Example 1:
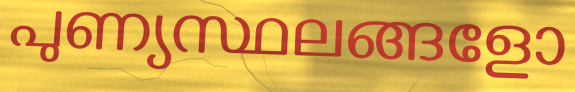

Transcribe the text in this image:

പുണ്യസ്ഥലങ്ങളോ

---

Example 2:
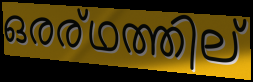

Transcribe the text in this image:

ഒരര്ഥത്തില്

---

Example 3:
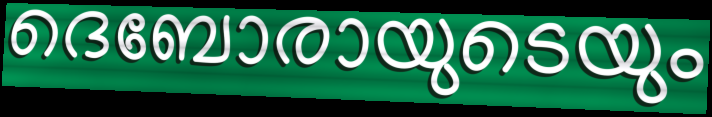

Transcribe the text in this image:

ദെബോരായുടെയും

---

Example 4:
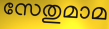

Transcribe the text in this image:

സേതുമാമ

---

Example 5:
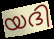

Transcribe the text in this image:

യദി